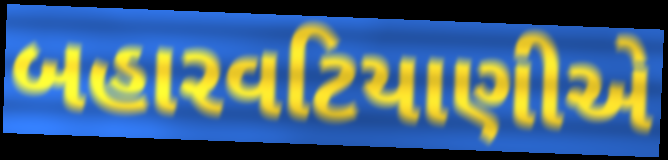
બહારવટિયાણીએ